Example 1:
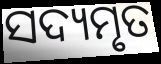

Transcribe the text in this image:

ସଦ୍ୟମୃତ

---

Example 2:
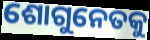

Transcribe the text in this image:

ଶୋଗୁନେତକୁ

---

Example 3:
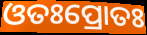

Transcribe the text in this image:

ଓତଃପ୍ରୋତଃ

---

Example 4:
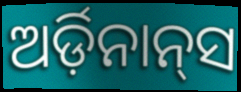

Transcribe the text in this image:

ଅର୍ଡ଼ିନାନ୍‌ସ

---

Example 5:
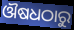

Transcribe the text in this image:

ଔଷଧଠାରୁ